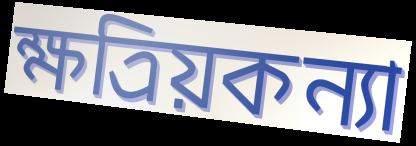
ক্ষত্রিয়কন্যা